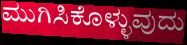
ಮುಗಿಸಿಕೊಳ್ಳುವುದು